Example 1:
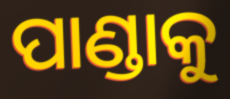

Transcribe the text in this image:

ପାଣ୍ଡାକୁ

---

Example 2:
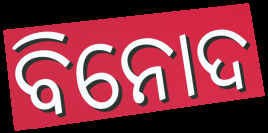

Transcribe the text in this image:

ବିନୋଦ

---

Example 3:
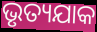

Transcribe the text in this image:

ଭୃତ୍ୟଯାକ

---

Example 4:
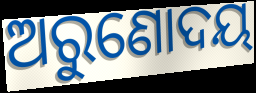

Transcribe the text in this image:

ଅରୁଣୋଦୟ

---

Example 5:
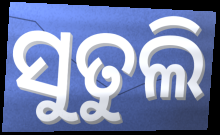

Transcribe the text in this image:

ସୁତୁଲି